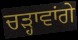
ਚੜ੍ਹਾਵਾਂਗੇ